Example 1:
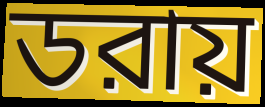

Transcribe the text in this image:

ডরায়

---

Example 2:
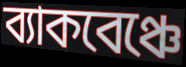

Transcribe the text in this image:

ব্যাকবেঞ্চে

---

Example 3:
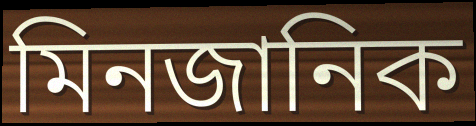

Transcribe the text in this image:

মিনজানিক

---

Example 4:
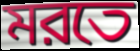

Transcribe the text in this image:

মরতে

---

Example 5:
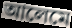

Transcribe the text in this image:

আলেমে